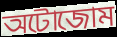
অটোজোম